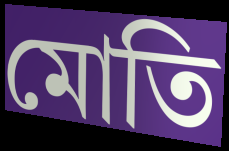
মোতি